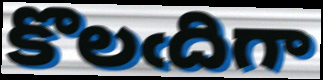
కొలఁదిగా